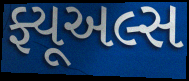
ફ્યૂઅલ્સ